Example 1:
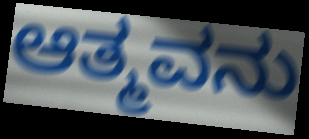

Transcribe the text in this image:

ಆತ್ಮವನು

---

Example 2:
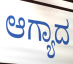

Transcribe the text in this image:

ಆಗ್ಯಾದ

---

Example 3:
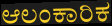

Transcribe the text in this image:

ಆಲಂಕಾರಿಕ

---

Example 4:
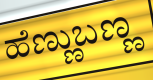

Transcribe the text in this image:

ಹೆಣ್ಣುಬಣ್ಣ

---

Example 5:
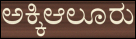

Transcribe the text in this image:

ಅಕ್ಕಿಆಲೂರು